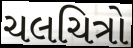
ચલચિત્રો